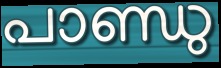
പാണ്ഡു